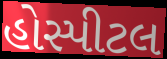
હોસ્પીટલ